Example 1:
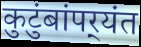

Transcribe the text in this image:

कुटुंबांपर्यंत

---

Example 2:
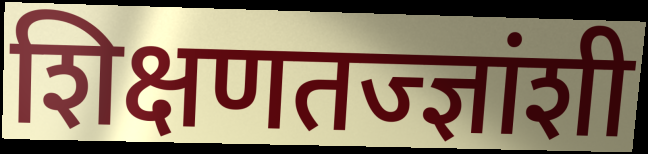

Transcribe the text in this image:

शिक्षणतज्ज्ञांशी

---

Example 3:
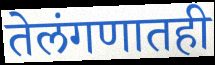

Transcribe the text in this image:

तेलंगणातही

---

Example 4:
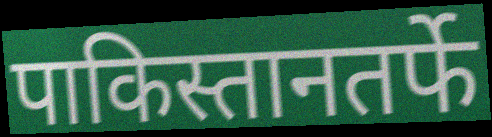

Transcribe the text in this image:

पाकिस्तानतर्फे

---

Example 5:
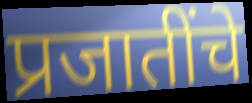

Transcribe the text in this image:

प्रजातींचे